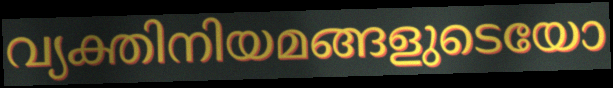
വ്യക്തിനിയമങ്ങളുടെയോ